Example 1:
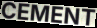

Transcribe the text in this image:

CEMENT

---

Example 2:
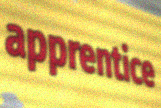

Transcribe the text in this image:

apprentice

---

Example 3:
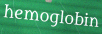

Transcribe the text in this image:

hemoglobin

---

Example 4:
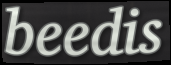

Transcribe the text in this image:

beedis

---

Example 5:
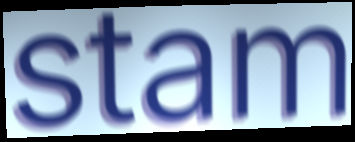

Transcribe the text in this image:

stam